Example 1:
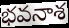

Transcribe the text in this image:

భవనాశ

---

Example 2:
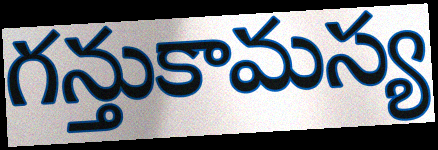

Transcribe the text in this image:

గన్తుకామస్య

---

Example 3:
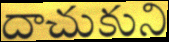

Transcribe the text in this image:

దాచుకుని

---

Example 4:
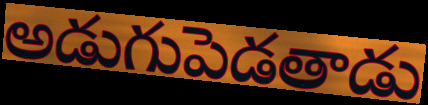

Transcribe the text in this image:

అడుగుపెడతాడు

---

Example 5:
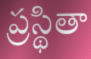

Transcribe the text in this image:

ప్రస్థితా